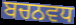
ਬਚਨਵਧ